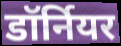
डॉर्नियर